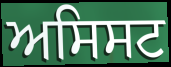
ਅਸਿਸਟ